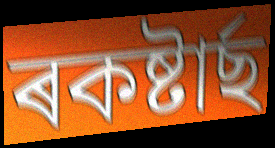
ৰকষ্টাৰ্ছ